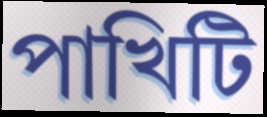
পাখিটি